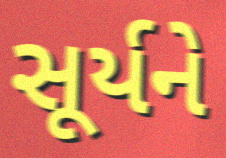
સૂર્યને